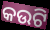
କଉଟି